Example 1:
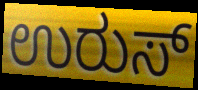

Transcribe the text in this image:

ಉರುಸ್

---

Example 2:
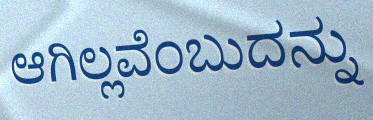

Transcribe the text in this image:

ಆಗಿಲ್ಲವೆಂಬುದನ್ನು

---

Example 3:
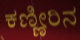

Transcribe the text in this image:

ಕಣ್ಣೀರಿನ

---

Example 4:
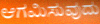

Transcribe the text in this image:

ಆಗಮಿಸುವುದು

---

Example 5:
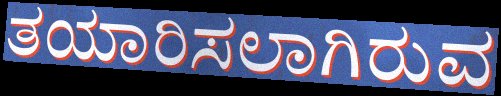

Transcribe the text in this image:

ತಯಾರಿಸಲಾಗಿರುವ